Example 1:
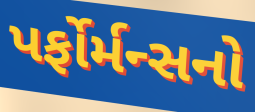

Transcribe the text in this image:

પર્ફોર્મન્સનો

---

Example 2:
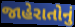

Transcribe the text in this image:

જાહેરાતોનું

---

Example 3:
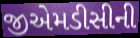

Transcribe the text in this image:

જીએમડીસીની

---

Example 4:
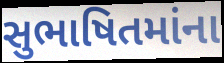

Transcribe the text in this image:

સુભાષિતમાંના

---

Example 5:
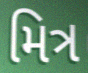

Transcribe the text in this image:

મિત્ર